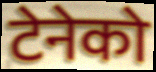
टेनेको